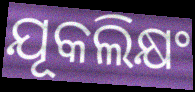
ଯୂକଲିକ୍ଷଂ